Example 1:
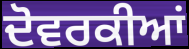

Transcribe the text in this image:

ਦੋਵਰਕੀਆਂ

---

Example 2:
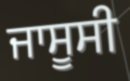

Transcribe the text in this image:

ਜਾਸੂਸੀ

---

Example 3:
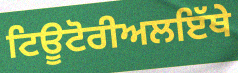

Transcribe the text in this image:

ਟਿਊਟੋਰੀਅਲਇੱਥੇ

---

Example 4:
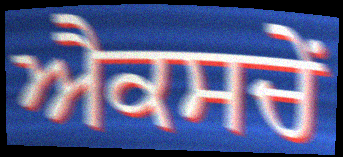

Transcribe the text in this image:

ਐਕਸਚੇਂ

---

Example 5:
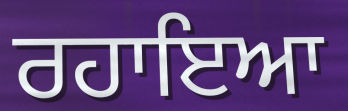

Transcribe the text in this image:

ਰਹਾਇਆ